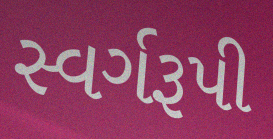
સ્વર્ગરૂપી